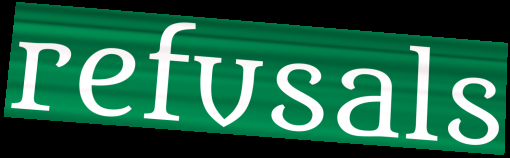
refusals